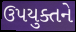
ઉપયુક્તને